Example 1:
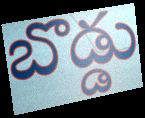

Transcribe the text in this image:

బొడ్డు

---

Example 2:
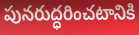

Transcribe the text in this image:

పునరుద్ధరించటానికి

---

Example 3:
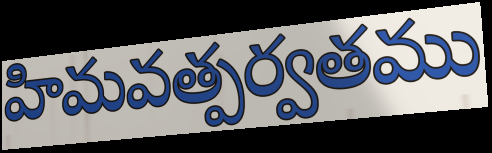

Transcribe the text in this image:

హిమవత్పర్వతము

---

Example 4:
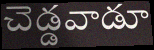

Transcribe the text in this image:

చెడ్డవాడూ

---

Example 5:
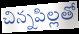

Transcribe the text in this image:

చిన్నపిల్లతో